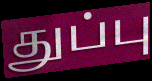
துப்பு